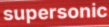
supersonic